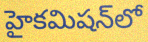
హైకమిషన్‌లో